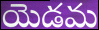
యెడమ